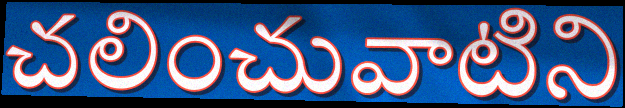
చలించువాటిని